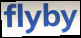
flyby